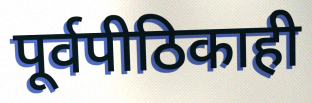
पूर्वपीठिकाही